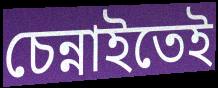
চেন্নাইতেই